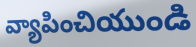
వ్యాపించియుండి